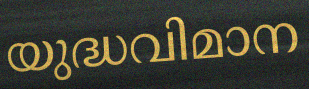
യുദ്ധവിമാന